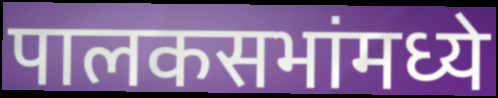
पालकसभांमध्ये